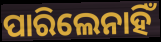
ପାରିଲେନାହିଁ